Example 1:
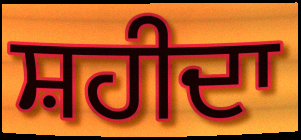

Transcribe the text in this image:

ਸ਼ਹੀਦਾ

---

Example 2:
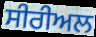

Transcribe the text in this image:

ਸੀਰੀਅਲ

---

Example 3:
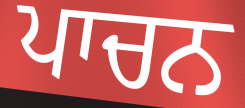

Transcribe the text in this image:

ਪਾਚਨ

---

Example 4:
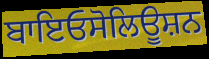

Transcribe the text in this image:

ਬਾਇਓਸੋਲਿਊਸ਼ਨ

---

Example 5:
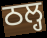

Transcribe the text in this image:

ਠਲ੍ਹ